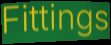
Fittings